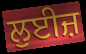
ਲੁਈਜ਼